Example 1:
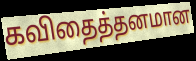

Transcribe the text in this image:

கவிதைத்தனமான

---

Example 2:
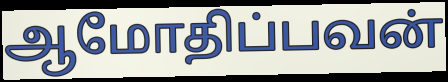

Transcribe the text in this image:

ஆமோதிப்பவன்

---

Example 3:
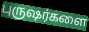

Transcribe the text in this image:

புருஷர்களை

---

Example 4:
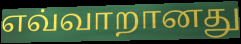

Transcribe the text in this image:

எவ்வாறானது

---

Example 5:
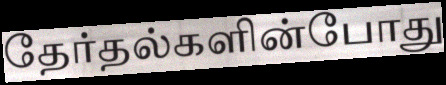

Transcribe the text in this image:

தேர்தல்களின்போது